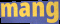
mang